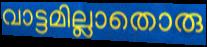
വാട്ടമില്ലാതൊരു